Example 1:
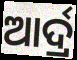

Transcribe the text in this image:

ଆର୍ଦ୍ର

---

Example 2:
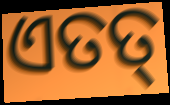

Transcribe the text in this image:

ଏତତ୍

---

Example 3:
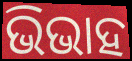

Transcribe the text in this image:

ଭିଭାହ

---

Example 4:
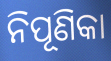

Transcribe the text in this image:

ନିପୂଣିକା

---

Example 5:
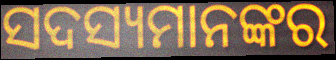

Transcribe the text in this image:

ସଦସ୍ୟମାନଙ୍କର